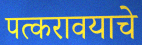
पत्करावयाचे